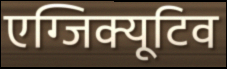
एग्जिक्यूटिव